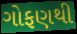
ગોફણથી